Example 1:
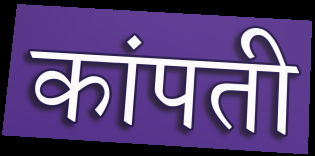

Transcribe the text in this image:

कांपती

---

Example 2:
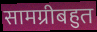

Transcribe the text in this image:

सामग्रीबहुत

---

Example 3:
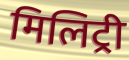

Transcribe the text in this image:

मिलिट्री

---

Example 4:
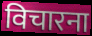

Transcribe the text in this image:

विचारना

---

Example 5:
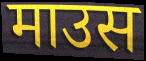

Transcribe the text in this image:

माउस